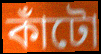
কাঁটো